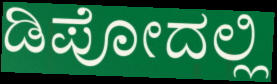
ಡಿಪೋದಲ್ಲಿ